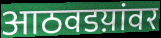
आठवडय़ांवर